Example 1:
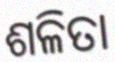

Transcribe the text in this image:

ଶଳିତା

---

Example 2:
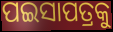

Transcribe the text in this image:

ପଇସାପତ୍ରକୁ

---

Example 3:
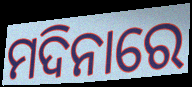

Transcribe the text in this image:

ମଦିନାରେ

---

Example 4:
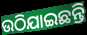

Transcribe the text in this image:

ଉଠିଯାଇଛନ୍ତି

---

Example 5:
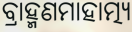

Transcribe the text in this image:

ବ୍ରାହ୍ମଣମାହାତ୍ମ୍ୟ